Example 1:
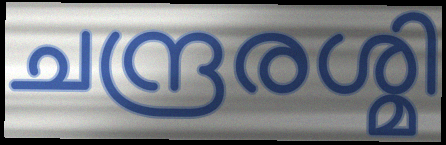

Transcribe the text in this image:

ചന്ദ്രരശ്മി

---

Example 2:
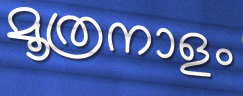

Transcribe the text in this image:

മൂത്രനാളം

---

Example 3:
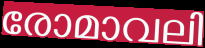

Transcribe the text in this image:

രോമാവലി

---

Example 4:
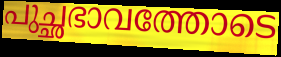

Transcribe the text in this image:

പുച്ഛഭാവത്തോടെ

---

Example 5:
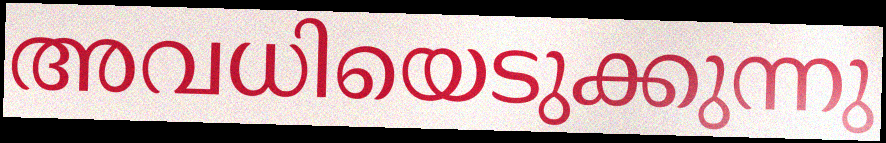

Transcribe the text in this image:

അവധിയെടുക്കുന്നു